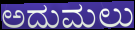
ಅದುಮಲು